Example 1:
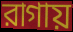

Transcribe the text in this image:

রাগায়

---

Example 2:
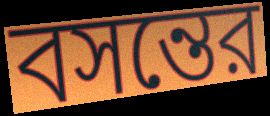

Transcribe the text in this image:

বসন্তের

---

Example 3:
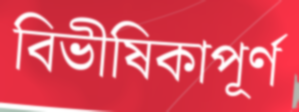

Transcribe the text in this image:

বিভীষিকাপূর্ণ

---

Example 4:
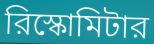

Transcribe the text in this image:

রিস্কোমিটার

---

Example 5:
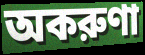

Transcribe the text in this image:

অকরুণা